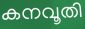
കനവൂതി